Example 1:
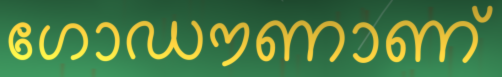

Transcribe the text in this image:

ഗോഡൗണാണ്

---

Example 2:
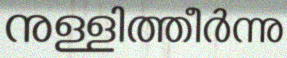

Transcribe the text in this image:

നുള്ളിത്തീർന്നു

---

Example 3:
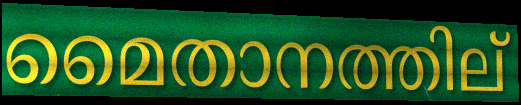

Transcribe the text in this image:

മൈതാനത്തില്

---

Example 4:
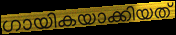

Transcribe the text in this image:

ഗായികയാക്കിയത്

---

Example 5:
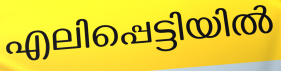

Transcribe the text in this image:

എലിപ്പെട്ടിയിൽ